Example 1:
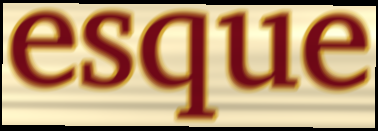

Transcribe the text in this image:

esque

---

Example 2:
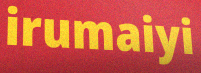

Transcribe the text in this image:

irumaiyi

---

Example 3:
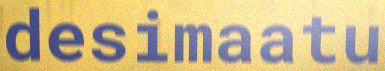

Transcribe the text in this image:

desimaatu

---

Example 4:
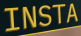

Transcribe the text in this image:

INSTA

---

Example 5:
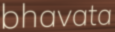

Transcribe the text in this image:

bhavata